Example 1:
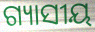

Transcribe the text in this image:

ଗ୍ୟାସୀୟ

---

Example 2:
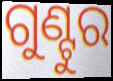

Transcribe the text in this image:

ଗୁଣ୍ଟୁର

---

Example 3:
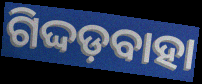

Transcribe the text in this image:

ଗିଦ୍ଦଡ଼ବାହା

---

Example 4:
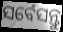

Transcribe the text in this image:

ସର୍ବେସନ୍ତୁ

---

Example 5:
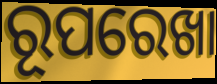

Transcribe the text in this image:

ରୂପରେଖା